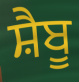
ਸ਼ੈਬੂ